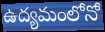
ఉద్యమంలోనో